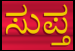
ಸುಪ್ತ